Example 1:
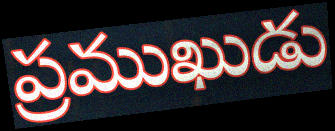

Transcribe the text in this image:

ప్రముఖుడు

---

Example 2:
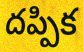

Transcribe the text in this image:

దప్పిక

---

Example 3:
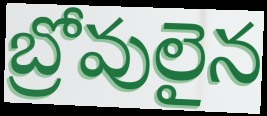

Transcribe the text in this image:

బ్రోవులైన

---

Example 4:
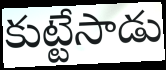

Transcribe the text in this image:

కుట్టేసాడు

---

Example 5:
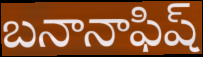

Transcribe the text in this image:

బనానాఫిష్